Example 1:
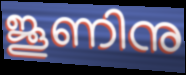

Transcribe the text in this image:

ജൂണിനു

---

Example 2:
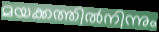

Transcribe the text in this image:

മയക്കത്തിൽനിന്നും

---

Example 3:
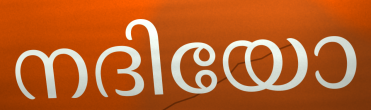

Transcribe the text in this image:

നദിയോ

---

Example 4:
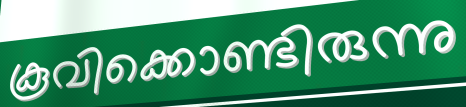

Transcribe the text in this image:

കൂവിക്കൊണ്ടിരുന്നു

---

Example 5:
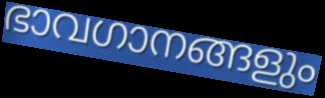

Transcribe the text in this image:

ഭാവഗാനങ്ങളും